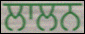
ਲਾਲਨ